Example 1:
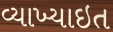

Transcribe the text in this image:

વ્યાખ્યાઇત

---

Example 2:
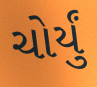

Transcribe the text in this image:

ચોર્યું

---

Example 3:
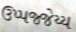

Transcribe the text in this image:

ઉપ્પજ્જેય્ય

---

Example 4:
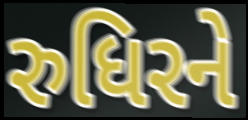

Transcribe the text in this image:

રુધિરને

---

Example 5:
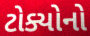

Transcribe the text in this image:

ટોક્યોનો